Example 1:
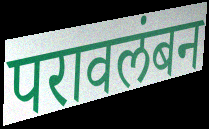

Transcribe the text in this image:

परावलंबन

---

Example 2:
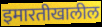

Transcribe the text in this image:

इमारतीखालील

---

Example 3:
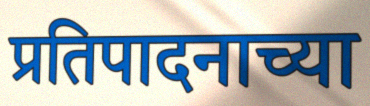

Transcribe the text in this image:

प्रतिपादनाच्या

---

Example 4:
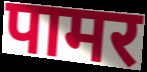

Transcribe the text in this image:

पामर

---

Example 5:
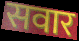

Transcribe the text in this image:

सवार